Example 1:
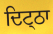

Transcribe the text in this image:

ਦਿਟ੍ਠਾ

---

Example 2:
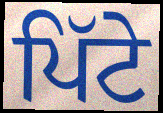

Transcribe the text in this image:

ਪਿੱਟੇ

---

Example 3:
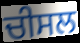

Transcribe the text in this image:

ਚੀਸਲ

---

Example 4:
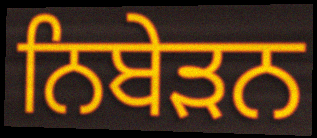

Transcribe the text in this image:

ਨਿਬੇੜਨ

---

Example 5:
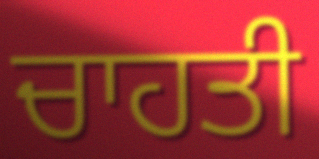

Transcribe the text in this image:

ਚਾਹਤੀ